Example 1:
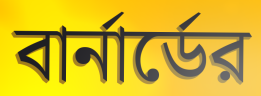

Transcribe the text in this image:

বার্নার্ডের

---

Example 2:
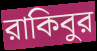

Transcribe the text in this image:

রাকিবুর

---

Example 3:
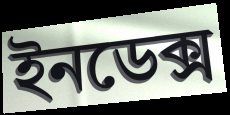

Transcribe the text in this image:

ইনডেক্স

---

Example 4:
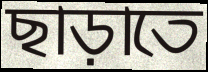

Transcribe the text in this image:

ছাড়াতে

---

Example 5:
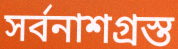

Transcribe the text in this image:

সর্বনাশগ্রস্ত